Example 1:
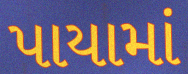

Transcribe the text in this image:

પાયામાં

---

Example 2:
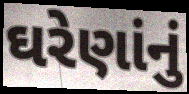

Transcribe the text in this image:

ઘરેણાંનું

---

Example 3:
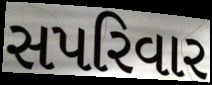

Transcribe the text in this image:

સપરિવાર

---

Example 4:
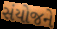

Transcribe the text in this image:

સંયોજને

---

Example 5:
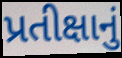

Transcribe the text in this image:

પ્રતીક્ષાનું